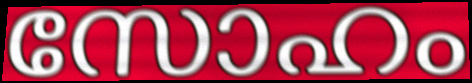
സോഹം